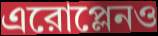
এরোপ্লেনও